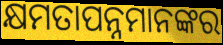
କ୍ଷମତାପନ୍ନମାନଙ୍କର